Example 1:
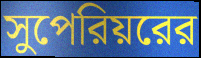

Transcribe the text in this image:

সুপেরিয়রের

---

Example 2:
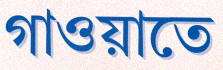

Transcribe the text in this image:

গাওয়াতে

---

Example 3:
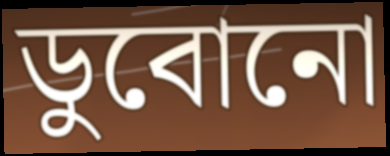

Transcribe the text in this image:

ডুবোনো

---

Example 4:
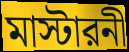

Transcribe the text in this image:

মাস্টারনী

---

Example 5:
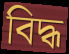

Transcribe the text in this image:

বিদ্ধ